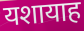
यशायाह